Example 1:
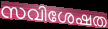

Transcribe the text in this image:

സവിശേഷത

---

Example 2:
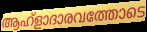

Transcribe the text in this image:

ആഹ്ളാദാരവത്തോടെ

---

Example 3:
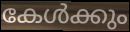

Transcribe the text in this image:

കേൾക്കും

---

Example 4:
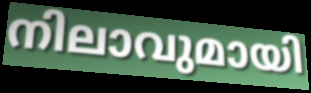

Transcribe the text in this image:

നിലാവുമായി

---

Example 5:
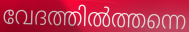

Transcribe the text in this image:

വേദത്തിൽത്തന്നെ